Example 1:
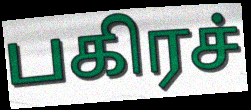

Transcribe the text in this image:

பகிரச்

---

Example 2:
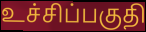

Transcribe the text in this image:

உச்சிப்பகுதி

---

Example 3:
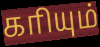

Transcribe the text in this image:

கரியும்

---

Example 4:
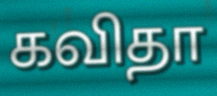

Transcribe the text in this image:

கவிதா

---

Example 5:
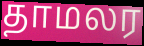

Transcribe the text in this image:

தாமலர